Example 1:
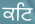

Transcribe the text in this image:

ਕਟਿ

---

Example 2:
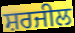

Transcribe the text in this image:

ਸ਼ਰਜੀਲ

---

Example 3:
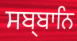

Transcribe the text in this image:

ਸਬ੍ਬਾਨਿ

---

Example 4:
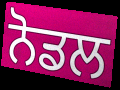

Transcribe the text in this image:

ਨੋਡਲ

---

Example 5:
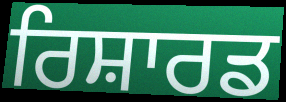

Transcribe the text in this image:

ਰਿਸ਼ਾਰਡ